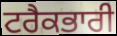
ਟਰੈਕਭਾਰੀ